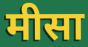
मीसा